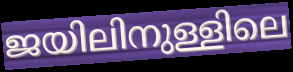
ജയിലിനുള്ളിലെ